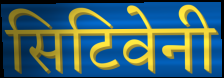
सिटिवेनी